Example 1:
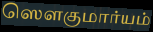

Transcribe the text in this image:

ஸௌகுமார்யம்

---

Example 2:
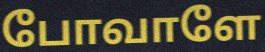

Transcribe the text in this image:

போவாளே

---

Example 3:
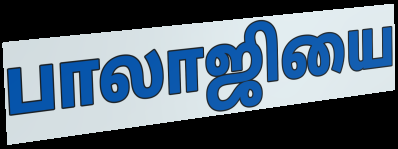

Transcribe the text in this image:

பாலாஜியை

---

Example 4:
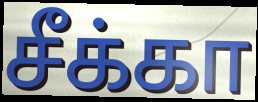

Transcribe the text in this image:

சீக்கா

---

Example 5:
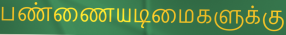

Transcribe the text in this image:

பண்ணையடிமைகளுக்கு